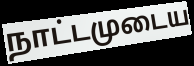
நாட்டமுடைய